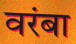
वरंबा